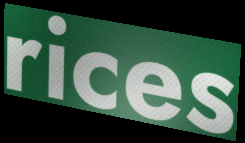
rices